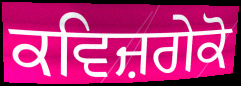
ਕਵਿਜ਼ਗੇਕੋ